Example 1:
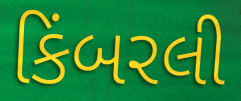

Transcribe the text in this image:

કિંબરલી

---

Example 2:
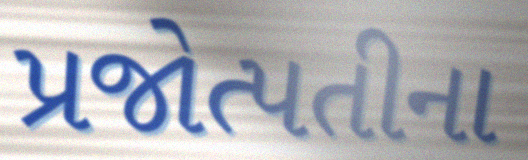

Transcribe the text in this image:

પ્રજોત્પતીના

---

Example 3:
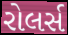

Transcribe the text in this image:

રોલર્સ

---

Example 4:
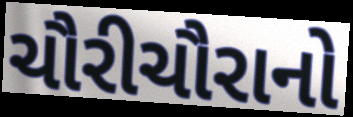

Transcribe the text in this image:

ચૌરીચૌરાનો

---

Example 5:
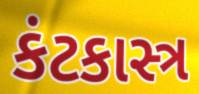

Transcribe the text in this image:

કંટકાસ્ત્ર